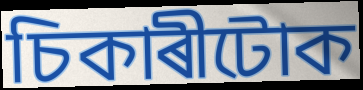
চিকাৰীটোক